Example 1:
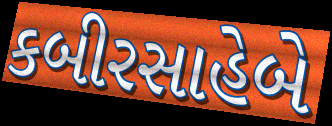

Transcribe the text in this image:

કબીરસાહેબે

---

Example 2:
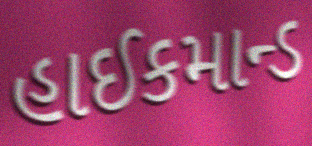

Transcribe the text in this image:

હાઈકમાન્ડ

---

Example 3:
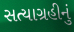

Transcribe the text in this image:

સત્યાગ્રહીનું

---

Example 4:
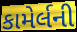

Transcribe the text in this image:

કામેર્લની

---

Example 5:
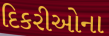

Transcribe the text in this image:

દિકરીઓના